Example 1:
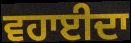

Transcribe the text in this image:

ਵਹਾਈਦਾ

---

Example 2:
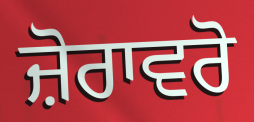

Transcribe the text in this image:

ਜ਼ੋਰਾਵਰੋ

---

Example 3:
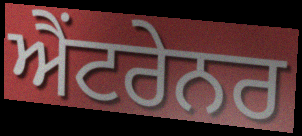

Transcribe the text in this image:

ਐਂਟਰੇਨਰ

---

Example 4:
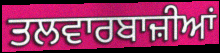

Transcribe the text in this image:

ਤਲਵਾਰਬਾਜ਼ੀਆਂ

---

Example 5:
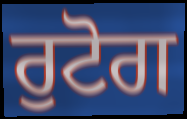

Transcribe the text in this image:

ਰੁਟੋਗ